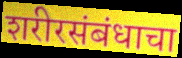
शरीरसंबंधाचा